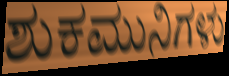
ಶುಕಮುನಿಗಳು